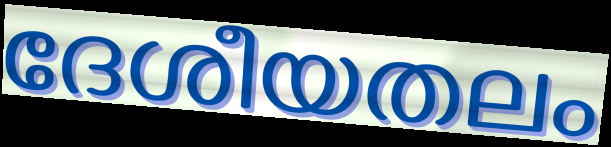
ദേശീയതലം